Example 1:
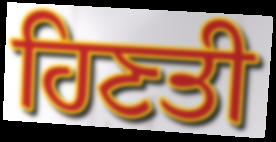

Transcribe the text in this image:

ਹਿਣਤੀ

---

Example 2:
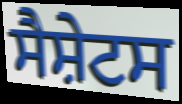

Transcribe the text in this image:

ਸੈਸ਼ੇਟਸ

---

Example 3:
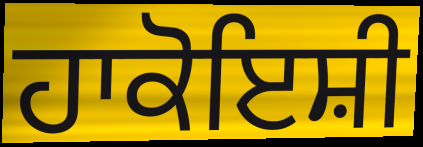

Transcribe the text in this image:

ਹਾਕੋਇਸ਼ੀ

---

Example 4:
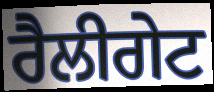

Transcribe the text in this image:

ਰੈਲੀਗੇਟ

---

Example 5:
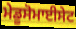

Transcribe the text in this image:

ਮੇਡੂਸੋਮਾਈਸੇਟ